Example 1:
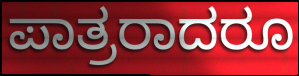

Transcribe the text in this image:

ಪಾತ್ರರಾದರೂ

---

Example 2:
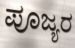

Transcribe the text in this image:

ಪೂಜ್ಯರ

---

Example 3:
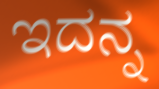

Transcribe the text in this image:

ಇದನ್ನ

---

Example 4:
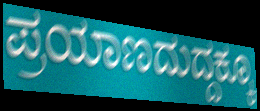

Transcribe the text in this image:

ಪ್ರಯಾಣದುದ್ದಕ್ಕೂ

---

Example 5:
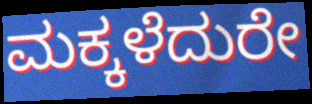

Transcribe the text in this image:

ಮಕ್ಕಳೆದುರೇ